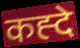
कह्दे